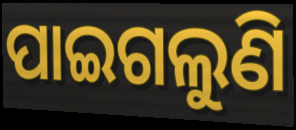
ପାଇଗଲୁଣି